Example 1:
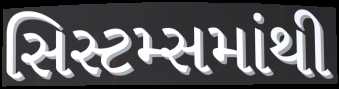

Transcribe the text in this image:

સિસ્ટમ્સમાંથી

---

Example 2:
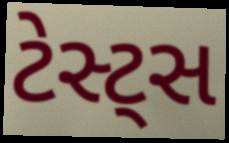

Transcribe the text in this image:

ટેસ્ટ્સ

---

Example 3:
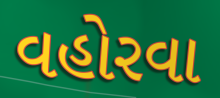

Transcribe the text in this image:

વહોરવા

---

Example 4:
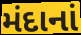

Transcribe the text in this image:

મંદાનાં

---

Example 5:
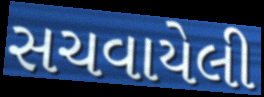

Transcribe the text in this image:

સચવાયેલી